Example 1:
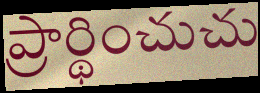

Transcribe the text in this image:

ప్రార్థించుచు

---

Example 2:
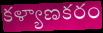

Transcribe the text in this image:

కళ్యాణకరం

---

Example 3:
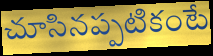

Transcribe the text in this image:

చూసినప్పటికంటే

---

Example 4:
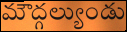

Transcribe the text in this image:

మౌద్గల్యుండు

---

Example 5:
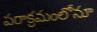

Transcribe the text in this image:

పరాక్రమంలోనూ